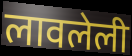
लावलेली